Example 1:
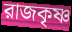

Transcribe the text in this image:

রাজকৃষ্ণ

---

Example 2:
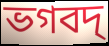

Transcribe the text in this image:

ভগবদ্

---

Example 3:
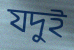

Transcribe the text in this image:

যদুই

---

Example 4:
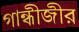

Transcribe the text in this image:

গান্ধীজীর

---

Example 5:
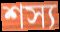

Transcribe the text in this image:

শস্য